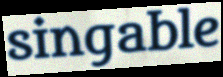
singable